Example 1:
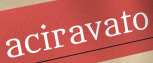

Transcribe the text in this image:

aciravato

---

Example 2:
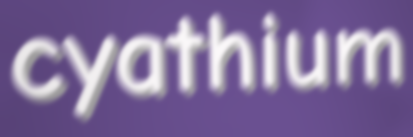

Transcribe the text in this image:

cyathium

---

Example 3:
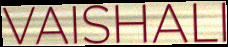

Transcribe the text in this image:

VAISHALI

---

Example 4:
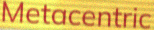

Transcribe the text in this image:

Metacentric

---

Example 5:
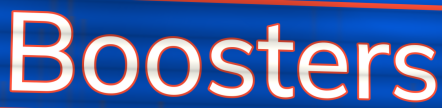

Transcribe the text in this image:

Boosters